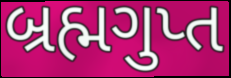
બ્રહ્મગુપ્ત